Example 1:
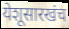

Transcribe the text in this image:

येशूसारखंच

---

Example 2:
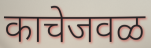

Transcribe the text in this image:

काचेजवळ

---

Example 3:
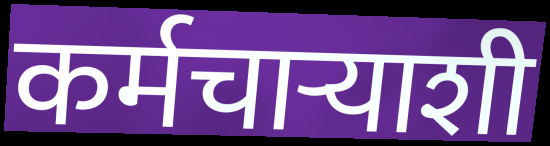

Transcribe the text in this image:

कर्मचाऱ्याशी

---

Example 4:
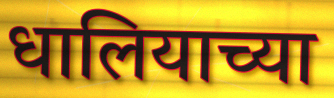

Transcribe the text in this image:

धालियाच्या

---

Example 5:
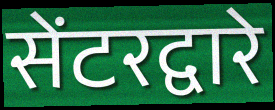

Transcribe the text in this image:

सेंटरद्वारे